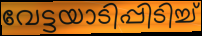
വേട്ടയാടിപ്പിടിച്ച്